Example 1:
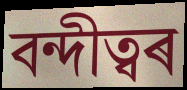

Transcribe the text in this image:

বন্দীত্বৰ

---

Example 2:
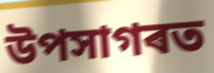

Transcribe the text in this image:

উপসাগৰত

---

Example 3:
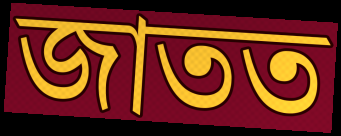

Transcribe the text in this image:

জাতত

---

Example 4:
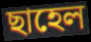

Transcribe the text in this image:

ছাহেল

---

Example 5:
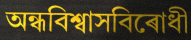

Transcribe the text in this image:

অন্ধবিশ্বাসবিৰোধী